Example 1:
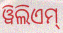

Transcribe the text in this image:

ୱିଲିଏମ୍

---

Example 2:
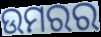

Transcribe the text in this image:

ଉମରର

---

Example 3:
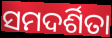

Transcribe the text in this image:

ସମଦର୍ଶିତା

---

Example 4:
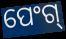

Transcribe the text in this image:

ପେଂଗ୍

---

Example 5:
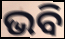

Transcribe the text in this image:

ଭବି